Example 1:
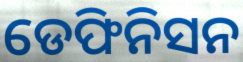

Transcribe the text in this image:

ଡେଫିନିସନ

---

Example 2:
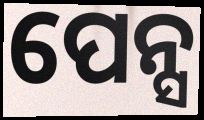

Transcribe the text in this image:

ପେନ୍ସ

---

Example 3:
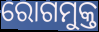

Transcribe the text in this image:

ରୋଗମୁକ୍ତ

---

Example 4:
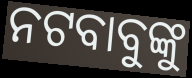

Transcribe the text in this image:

ନଟବାବୁଙ୍କୁ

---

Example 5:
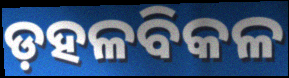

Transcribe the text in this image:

ଡ଼ହଳବିକଳ